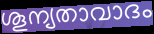
ശൂന്യതാവാദം